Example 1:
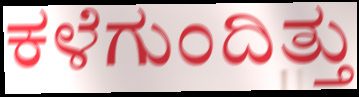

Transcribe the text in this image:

ಕಳೆಗುಂದಿತ್ತು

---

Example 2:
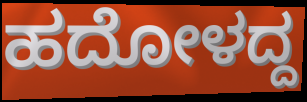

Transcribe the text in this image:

ಹದೋಳದ್ದ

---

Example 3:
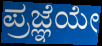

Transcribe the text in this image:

ಪ್ರಜ್ಞೆಯೇ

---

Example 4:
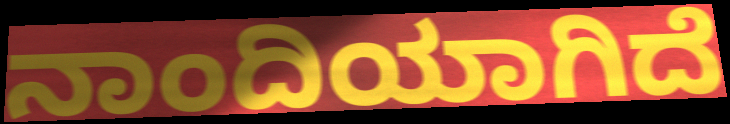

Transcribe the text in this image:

ನಾಂದಿಯಾಗಿದೆ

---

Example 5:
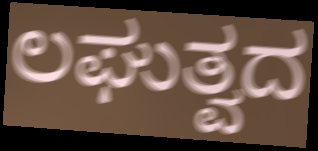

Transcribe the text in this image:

ಲಘುತ್ವದ